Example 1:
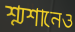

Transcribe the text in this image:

শ্মশানেও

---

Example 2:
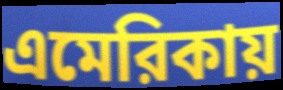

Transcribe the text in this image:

এমেরিকায়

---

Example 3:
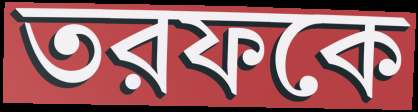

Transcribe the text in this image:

তরফকে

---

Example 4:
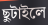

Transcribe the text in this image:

ছুটাইলে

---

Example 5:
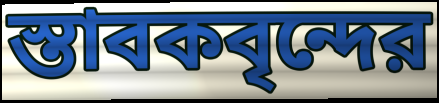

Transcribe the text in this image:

স্তাবকবৃন্দের